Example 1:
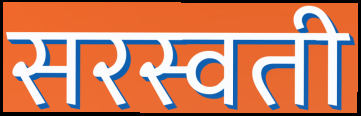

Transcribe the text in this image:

सरस्‍वती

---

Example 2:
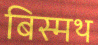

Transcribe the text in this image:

बिस्मथ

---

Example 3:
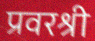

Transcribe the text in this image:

प्रवरश्री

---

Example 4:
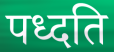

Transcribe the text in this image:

पध्दति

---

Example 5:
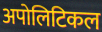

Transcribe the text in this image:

अपोलिटिकल